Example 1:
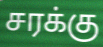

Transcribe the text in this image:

சரக்கு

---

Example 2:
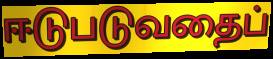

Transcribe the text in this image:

ஈடுபடுவதைப்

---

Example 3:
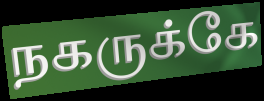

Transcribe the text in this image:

நகருக்கே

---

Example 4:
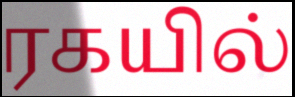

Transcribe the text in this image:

ரகயில்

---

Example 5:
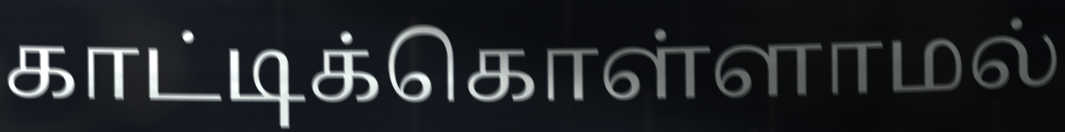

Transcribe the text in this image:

காட்டிக்கொள்ளாமல்